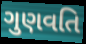
ગુણવતિ